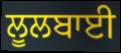
ਲੂਲਬਾਈ